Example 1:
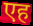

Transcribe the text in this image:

एह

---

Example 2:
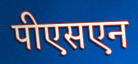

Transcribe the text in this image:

पीएसएन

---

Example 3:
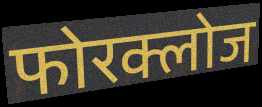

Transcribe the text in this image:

फोरक्लोज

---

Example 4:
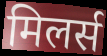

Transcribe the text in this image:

मिलर्स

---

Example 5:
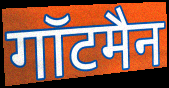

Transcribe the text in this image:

गॉटमैन